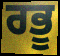
ਰਭੂ